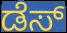
ಡೆಸ್